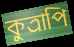
কুত্রাপি